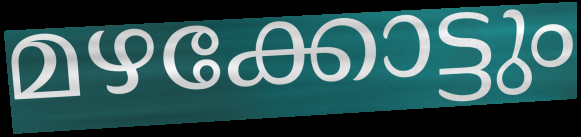
മഴക്കോട്ടും